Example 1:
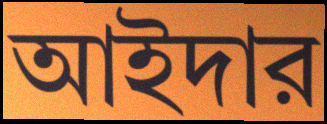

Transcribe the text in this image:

আইদার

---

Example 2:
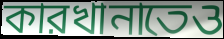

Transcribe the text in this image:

কারখানাতেও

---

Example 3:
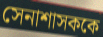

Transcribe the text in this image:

সেনাশাসককে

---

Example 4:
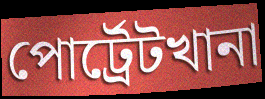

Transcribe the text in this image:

পোর্ট্রেটখানা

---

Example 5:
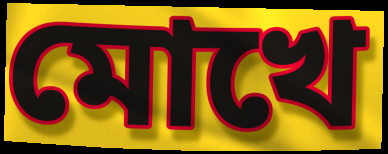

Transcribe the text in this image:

মোখে